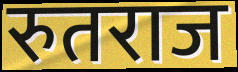
रुतराज